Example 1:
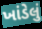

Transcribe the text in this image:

ખાંડેલું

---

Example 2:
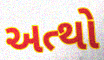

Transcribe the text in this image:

અત્થો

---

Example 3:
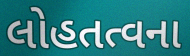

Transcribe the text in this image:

લોહતત્વના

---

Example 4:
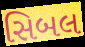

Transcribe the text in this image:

સિબલ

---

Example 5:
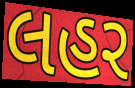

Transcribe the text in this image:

લહર